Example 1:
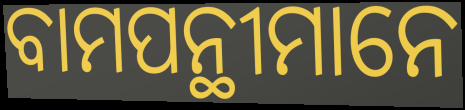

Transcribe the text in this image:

ବାମପନ୍ଥୀମାନେ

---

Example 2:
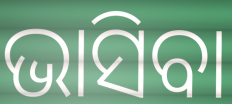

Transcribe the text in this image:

ଭାସିବା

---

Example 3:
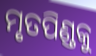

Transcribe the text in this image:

ମୃତପିଣ୍ଡକୁ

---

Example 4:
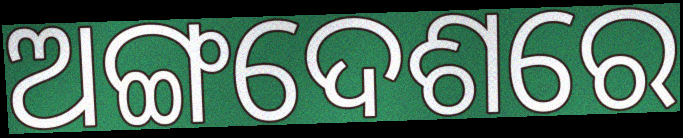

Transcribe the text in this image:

ଅଙ୍ଗଦେଶରେ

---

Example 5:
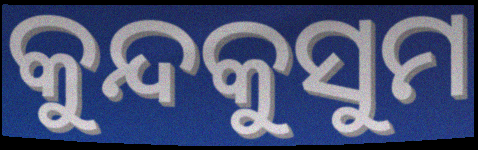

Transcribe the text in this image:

କୁନ୍ଦକୁସୁମ